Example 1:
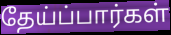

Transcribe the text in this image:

தேய்ப்பார்கள்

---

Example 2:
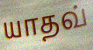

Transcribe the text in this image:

யாதவ்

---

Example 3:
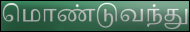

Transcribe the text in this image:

மொண்டுவந்து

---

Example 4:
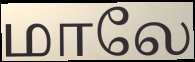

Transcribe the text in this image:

மாலே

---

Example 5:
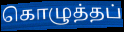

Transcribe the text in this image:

கொழுத்தப்